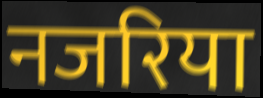
नजरिया